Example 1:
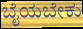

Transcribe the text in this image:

ಬೈಯಬೇಕು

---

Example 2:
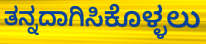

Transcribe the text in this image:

ತನ್ನದಾಗಿಸಿಕೊಳ್ಳಲು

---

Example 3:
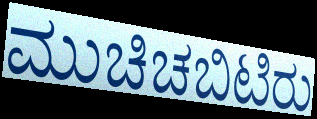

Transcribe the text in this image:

ಮುಚಿಚಬಿಟಿರು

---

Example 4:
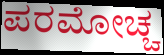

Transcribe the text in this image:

ಪರಮೋಚ್ಚ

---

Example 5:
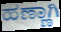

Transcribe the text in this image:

ಹಣ್ಣಾಗಿ